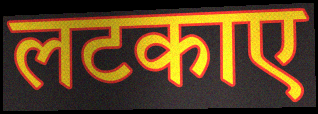
लटकाए